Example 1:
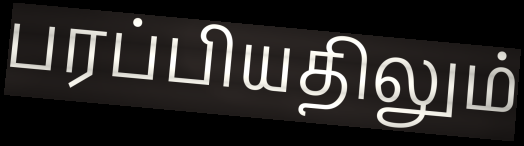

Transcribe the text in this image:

பரப்பியதிலும்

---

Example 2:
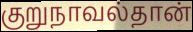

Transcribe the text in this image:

குறுநாவல்தான்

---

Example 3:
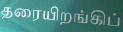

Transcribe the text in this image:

தரையிறங்கிப்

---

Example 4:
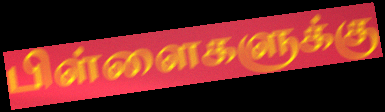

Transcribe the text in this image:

பிள்ளைகளுக்கு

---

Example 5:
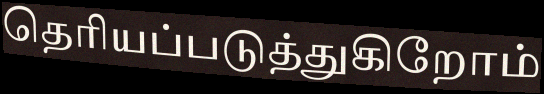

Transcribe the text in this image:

தெரியப்படுத்துகிறோம்